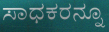
ಸಾಧಕರನ್ನೂ